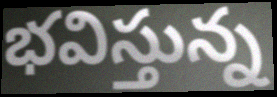
భవిస్తున్న